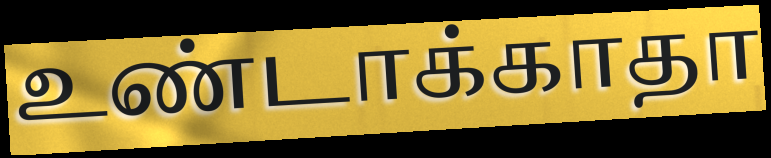
உண்டாக்காதா